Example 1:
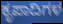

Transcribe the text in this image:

ಕೃಪಾದಿಗಳ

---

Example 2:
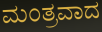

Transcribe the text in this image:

ಮಂತ್ರವಾದ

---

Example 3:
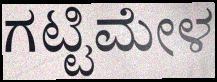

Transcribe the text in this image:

ಗಟ್ಟಿಮೇಳ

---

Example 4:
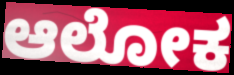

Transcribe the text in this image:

ಆಲೋಕ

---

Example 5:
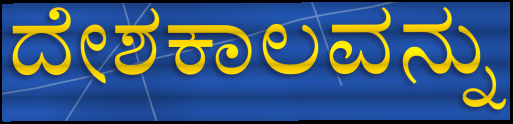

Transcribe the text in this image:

ದೇಶಕಾಲವನ್ನು